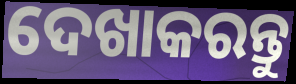
ଦେଖାକରନ୍ତୁ